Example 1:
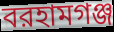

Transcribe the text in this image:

বরহামগঞ্জ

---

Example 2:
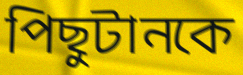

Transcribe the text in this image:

পিছুটানকে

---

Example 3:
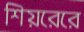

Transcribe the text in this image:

শিয়রেরে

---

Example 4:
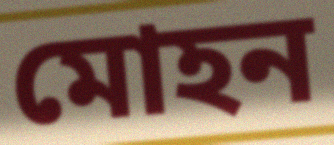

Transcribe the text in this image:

মোহন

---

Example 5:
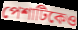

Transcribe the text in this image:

পেশাটিকেও